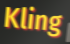
Kling